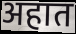
अहात